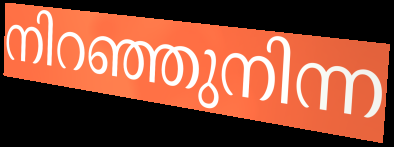
നിറഞ്ഞുനിന്ന